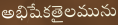
అభిషేకతైలమును